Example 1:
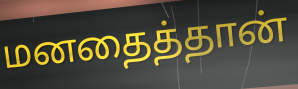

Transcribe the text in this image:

மனதைத்தான்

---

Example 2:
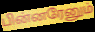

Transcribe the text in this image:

பின்னரேனும்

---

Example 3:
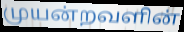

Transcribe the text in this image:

முயன்றவளின்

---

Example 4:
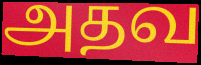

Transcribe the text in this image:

அதவ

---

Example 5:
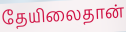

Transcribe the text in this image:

தேயிலைதான்